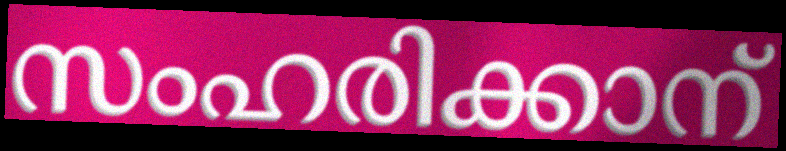
സംഹരിക്കാന്